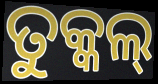
ତୁକ୍କଲ୍